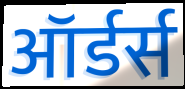
ऑर्डर्स